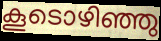
കൂടൊഴിഞ്ഞു